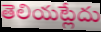
తెలియట్లేదు